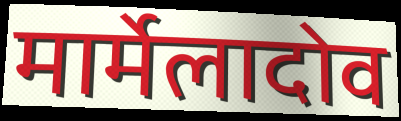
मार्मेलादोव